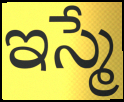
ఇస్మే